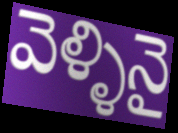
వెళ్ళినై